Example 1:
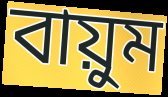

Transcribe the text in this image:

বায়ুম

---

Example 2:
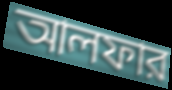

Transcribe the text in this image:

আলফার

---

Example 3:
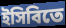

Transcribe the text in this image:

ইসিবিতে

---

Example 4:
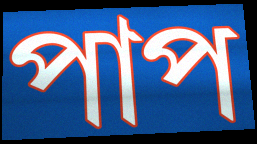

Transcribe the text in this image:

পাপ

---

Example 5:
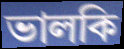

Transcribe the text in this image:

ভালকি